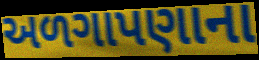
અળગાપણાના